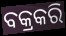
ବକ୍ରକରି